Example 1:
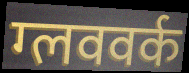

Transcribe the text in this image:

ग्लववर्क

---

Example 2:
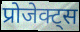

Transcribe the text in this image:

प्रोजेक्ट्स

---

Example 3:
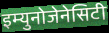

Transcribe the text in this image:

इम्युनोजेनेसिटी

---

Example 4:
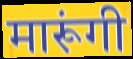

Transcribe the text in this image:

मारूंगी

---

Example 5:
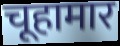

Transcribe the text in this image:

चूहामार